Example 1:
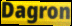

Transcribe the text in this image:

Dagron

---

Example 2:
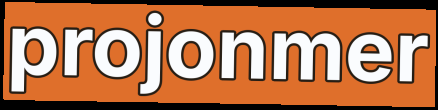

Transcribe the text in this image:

projonmer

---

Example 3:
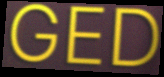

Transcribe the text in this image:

GED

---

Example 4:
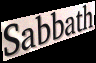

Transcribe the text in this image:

Sabbath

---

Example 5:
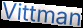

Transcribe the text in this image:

Vittman